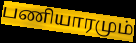
பணியாரமும்